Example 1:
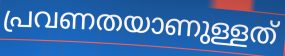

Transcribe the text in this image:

പ്രവണതയാണുള്ളത്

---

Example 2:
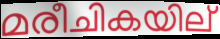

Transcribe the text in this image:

മരീചികയില്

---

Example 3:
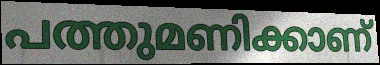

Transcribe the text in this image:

പത്തുമണിക്കാണ്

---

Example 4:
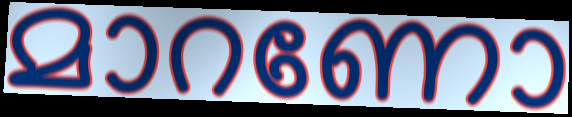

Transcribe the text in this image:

മാറണോ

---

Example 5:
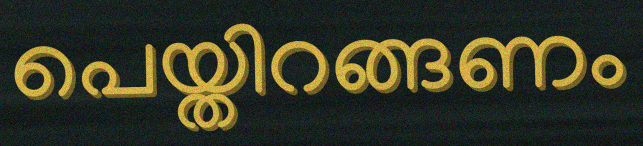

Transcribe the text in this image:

പെയ്തിറങ്ങണം